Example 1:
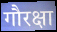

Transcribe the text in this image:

गौरक्षा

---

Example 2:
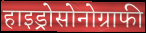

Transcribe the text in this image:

हाइड्रोसोनोग्राफी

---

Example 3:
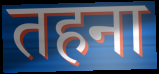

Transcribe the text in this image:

तहना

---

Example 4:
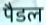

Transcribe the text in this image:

पैडल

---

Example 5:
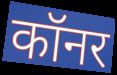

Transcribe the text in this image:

कॉनर